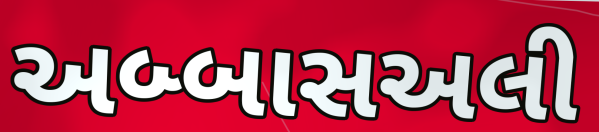
અબ્બાસઅલી